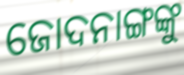
ଜୋଦନାଙ୍ଗଙ୍କୁ